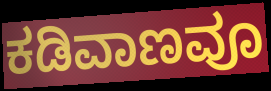
ಕಡಿವಾಣವೂ